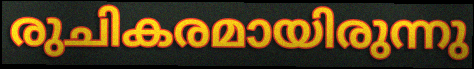
രുചികരമായിരുന്നു